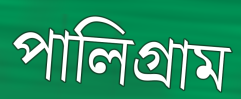
পালিগ্রাম